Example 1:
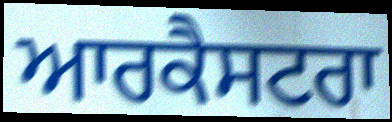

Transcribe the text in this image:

ਆਰਕੈਸਟਰਾ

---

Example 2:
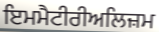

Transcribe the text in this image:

ਇਮਮੈਟੀਰੀਅਲਿਜ਼ਮ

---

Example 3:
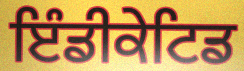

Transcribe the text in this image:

ਇੰਡੀਕੇਟਿਡ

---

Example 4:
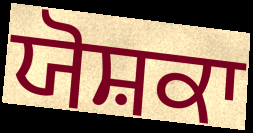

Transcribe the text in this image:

ਯੋਸ਼ਕਾ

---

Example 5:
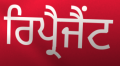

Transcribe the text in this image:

ਰਿਪ੍ਰੈਜੈਂਟ